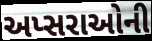
અપ્સરાઓની